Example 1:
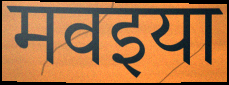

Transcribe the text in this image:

मवइया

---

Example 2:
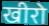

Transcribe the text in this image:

खीरो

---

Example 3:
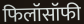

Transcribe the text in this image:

फिलॉसॉफी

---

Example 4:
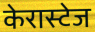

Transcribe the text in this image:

केरास्टेज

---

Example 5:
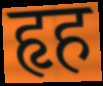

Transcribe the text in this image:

हृह